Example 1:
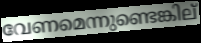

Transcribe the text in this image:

വേണമെന്നുണ്ടെങ്കില്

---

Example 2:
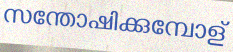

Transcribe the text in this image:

സന്തോഷിക്കുമ്പോള്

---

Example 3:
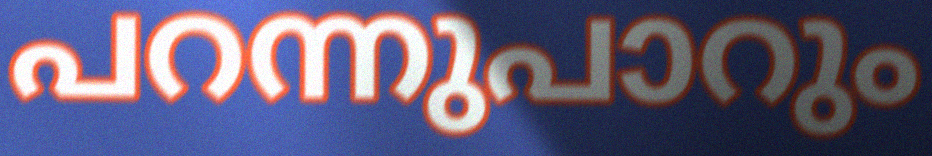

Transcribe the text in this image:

പറന്നുപാറും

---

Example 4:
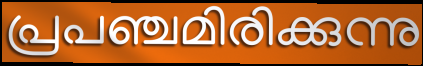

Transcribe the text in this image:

പ്രപഞ്ചമിരിക്കുന്നു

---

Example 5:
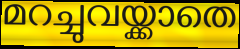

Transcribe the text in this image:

മറച്ചുവയ്ക്കാതെ